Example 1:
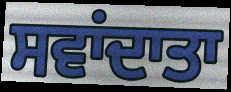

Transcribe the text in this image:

ਸਵਾਂਦਾਤਾ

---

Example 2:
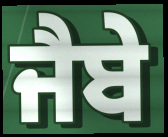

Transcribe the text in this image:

ਜੈਬੇ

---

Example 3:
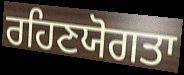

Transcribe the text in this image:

ਰਹਿਣਯੋਗਤਾ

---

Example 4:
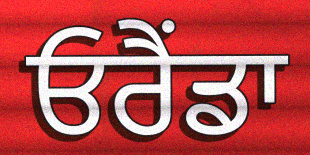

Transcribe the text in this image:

ਓਰੈਂਡਾ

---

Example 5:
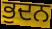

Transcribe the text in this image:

ਭੁਦਨ